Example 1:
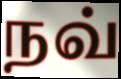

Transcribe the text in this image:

நவ்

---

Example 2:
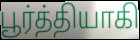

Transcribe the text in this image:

பூர்த்தியாகி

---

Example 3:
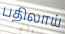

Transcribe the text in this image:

பதிலாய்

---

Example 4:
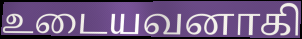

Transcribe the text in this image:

உடையவனாகி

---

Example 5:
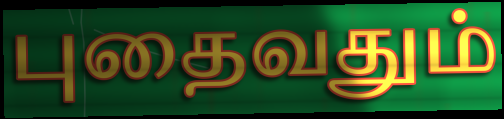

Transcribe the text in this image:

புதைவதும்